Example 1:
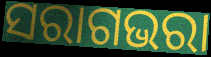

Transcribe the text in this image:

ସରାଗଭରା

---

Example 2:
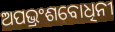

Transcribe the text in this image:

ଅପଭ୍ରଂଶବୋଧିନୀ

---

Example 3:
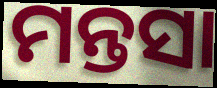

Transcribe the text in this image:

ମନ୍ତସା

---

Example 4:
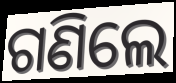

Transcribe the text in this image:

ଗଣିଲେ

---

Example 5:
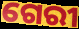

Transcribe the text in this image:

ଗେରୀ